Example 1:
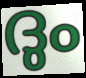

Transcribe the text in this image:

ദും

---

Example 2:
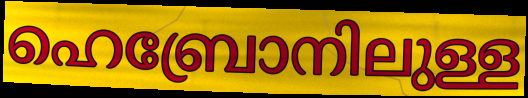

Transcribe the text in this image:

ഹെബ്രോനിലുള്ള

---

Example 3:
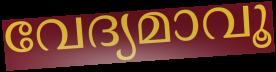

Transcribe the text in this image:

വേദ്യമാവൂ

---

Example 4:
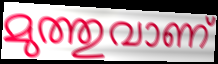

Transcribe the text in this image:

മുത്തുവാണ്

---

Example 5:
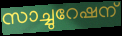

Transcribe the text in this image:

സാച്ചുറേഷന്